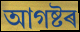
আগষ্টৰ